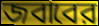
জবাবের